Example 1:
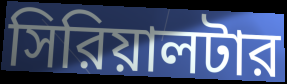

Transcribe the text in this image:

সিরিয়ালটার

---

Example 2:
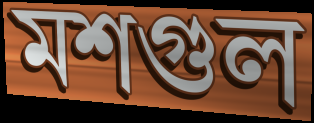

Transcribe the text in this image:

মশগুল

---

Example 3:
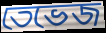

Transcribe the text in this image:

তেভেজ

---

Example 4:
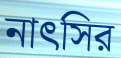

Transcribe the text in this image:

নাৎসির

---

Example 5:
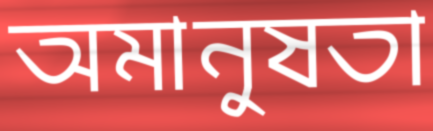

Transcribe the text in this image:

অমানুষতা